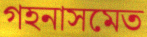
গহনাসমেত